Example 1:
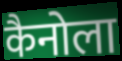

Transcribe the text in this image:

कैनोला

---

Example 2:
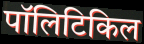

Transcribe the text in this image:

पॉलिटिकिल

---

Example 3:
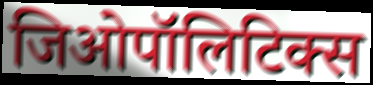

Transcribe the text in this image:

जिओपॉलिटिक्स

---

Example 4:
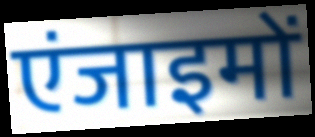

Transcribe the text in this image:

एंजाइमों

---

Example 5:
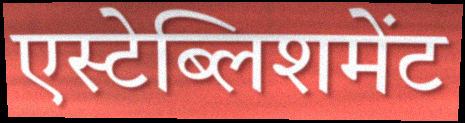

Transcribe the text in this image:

एस्टेब्लिशमेंट